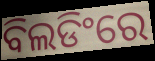
ବିଲଡିଂରେ